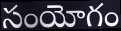
సంయోగం